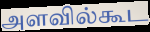
அளவில்கூட